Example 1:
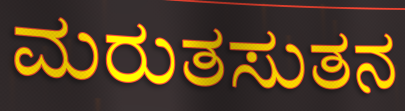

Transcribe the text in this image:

ಮರುತಸುತನ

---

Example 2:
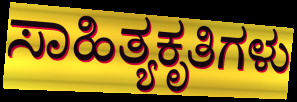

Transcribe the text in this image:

ಸಾಹಿತ್ಯಕೃತಿಗಳು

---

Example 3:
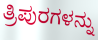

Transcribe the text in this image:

ತ್ರಿಪುರಗಳನ್ನು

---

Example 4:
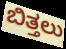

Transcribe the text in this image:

ಬಿತ್ತಲು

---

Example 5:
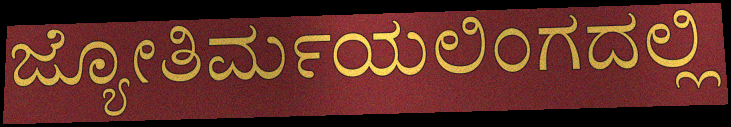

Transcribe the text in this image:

ಜ್ಯೋತಿರ್ಮಯಲಿಂಗದಲ್ಲಿ